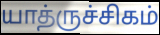
யாத்ருச்சிகம்